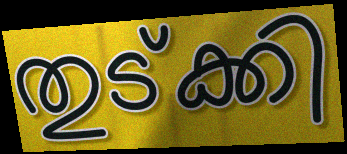
തുട്ക്കി